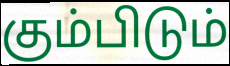
கும்பிடும்